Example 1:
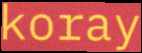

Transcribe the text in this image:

koray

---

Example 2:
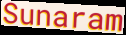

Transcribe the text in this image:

Sunaram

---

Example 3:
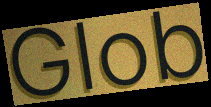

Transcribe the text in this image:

Glob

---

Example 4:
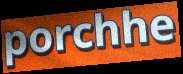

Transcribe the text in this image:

porchhe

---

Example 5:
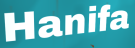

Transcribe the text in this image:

Hanifa